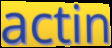
actin